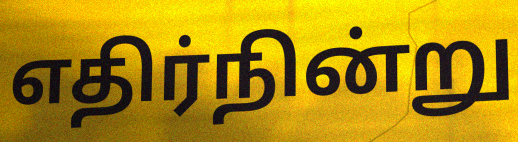
எதிர்நின்று